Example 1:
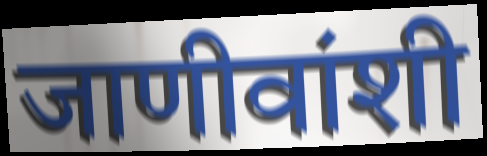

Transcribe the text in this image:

जाणीवांशी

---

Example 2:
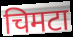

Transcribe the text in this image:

चिमटा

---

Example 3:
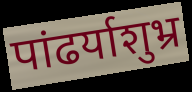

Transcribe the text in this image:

पांढर्याशुभ्र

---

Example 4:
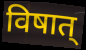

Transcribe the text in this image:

विषात्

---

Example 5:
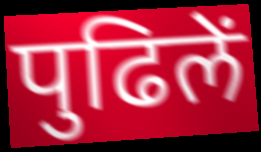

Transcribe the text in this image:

पुढिलें